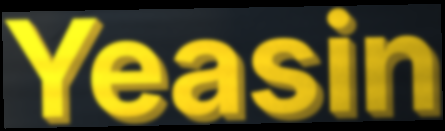
Yeasin